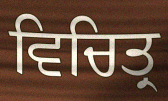
ਵਿਚਿਤ੍ਰ